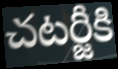
చటర్జీకి